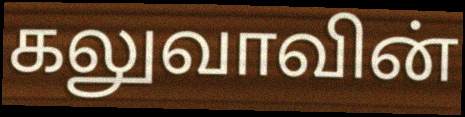
கலுவாவின்